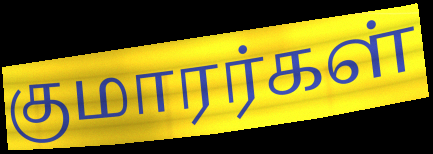
குமாரர்கள்